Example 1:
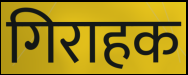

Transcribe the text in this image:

गिराहक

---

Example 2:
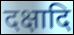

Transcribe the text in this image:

दक्षादि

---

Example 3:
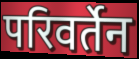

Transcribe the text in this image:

परिवर्तेन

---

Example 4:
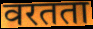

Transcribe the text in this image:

वरतता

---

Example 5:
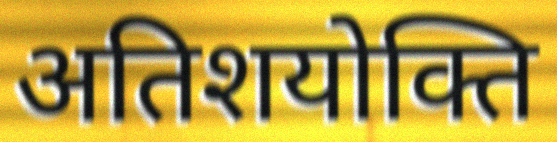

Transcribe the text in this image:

अतिशयोक्ति